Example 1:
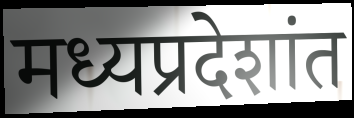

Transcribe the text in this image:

मध्यप्रदेशांत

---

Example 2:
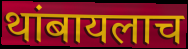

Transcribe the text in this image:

थांबायलाच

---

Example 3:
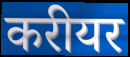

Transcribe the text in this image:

करीयर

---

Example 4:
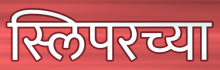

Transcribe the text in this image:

स्लिपरच्या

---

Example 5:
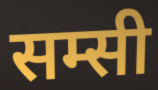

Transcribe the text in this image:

सम्सी